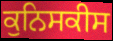
ਕੁਨਿਸਕੀਸ